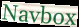
Navbox